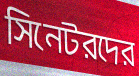
সিনেটরদের